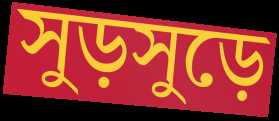
সুড়সুড়ে